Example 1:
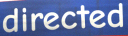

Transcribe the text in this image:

directed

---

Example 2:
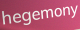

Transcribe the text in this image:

hegemony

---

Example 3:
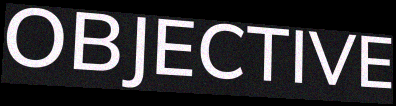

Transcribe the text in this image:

OBJECTIVE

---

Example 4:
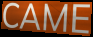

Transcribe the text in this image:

CAME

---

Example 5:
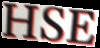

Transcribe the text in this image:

HSE